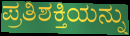
ಪ್ರತಿಶಕ್ತಿಯನ್ನು